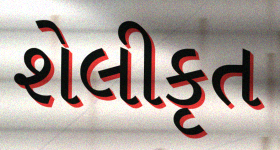
શેલીકૃત